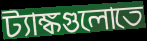
ট্যাঙ্কগুলোতে